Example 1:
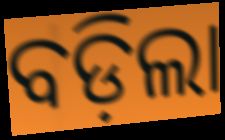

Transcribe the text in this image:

ବଡ଼ିଲା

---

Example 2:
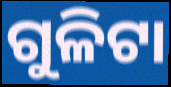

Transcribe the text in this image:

ଗୁଳିଟା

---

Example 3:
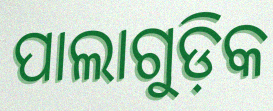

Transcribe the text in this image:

ପାଲାଗୁଡ଼ିକ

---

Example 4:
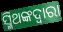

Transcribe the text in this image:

ସ୍ମିଥଙ୍କଦ୍ୱାରା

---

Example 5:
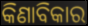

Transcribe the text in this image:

କିଣାବିକାର